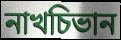
নাখচিভান